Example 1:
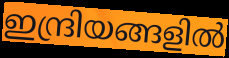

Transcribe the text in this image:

ഇന്ദ്രിയങ്ങളിൽ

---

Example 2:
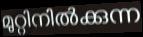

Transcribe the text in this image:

മുറ്റിനിൽക്കുന്ന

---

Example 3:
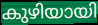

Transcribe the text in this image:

കുഴിയായി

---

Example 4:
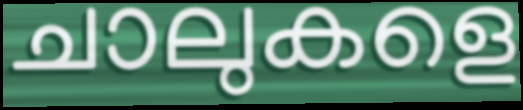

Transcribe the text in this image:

ചാലുകളെ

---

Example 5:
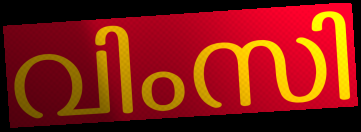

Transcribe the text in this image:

വിംസി